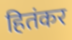
हितंकर